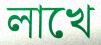
লাখে